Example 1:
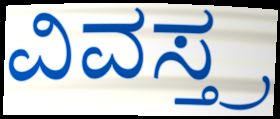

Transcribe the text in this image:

ವಿವಸ್ತ್ರ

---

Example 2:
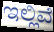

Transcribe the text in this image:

ಇಲ್ಲಿವೆ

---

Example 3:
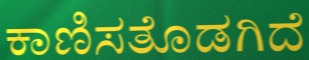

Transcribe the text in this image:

ಕಾಣಿಸತೊಡಗಿದೆ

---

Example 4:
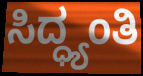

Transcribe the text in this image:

ಸಿದ್ಧ್ಯಂತಿ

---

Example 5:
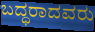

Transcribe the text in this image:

ಬದ್ಧರಾದವರು